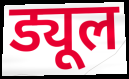
ड्यूल